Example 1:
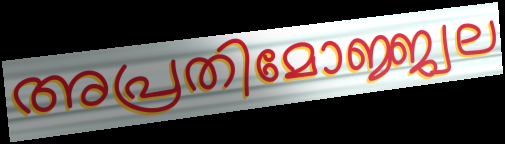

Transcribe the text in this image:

അപ്രതിമോജ്ജ്വല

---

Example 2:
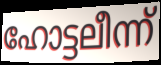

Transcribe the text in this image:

ഹോട്ടലീന്ന്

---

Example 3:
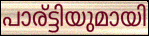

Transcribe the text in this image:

പാര്ട്ടിയുമായി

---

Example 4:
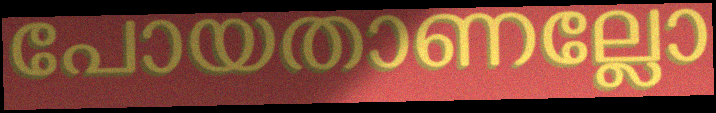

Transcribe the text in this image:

പോയതാണല്ലോ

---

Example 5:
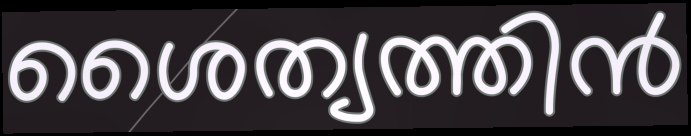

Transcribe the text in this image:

ശൈത്യത്തിൻ